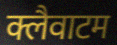
क्लैवाटम